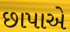
છાપાએ